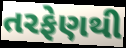
તરફેણથી